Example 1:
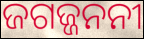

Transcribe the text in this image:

ଜଗଜ୍ଜନନୀ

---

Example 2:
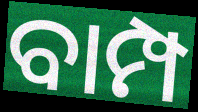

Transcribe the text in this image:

ବାମ୍ପ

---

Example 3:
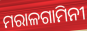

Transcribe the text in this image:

ମରାଳଗାମିନୀ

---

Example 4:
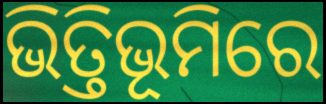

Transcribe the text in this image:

ଭିତ୍ତିଭୂମିରେ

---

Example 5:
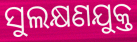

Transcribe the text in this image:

ସୁଲକ୍ଷଣଯୁକ୍ତ